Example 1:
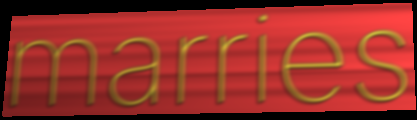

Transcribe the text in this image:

marries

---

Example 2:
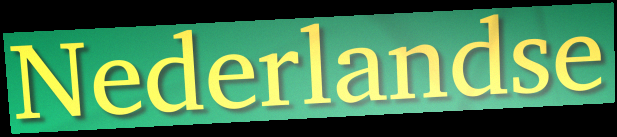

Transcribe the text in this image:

Nederlandse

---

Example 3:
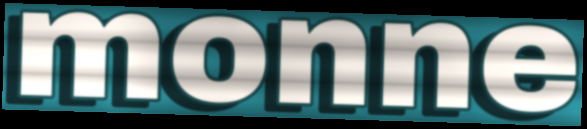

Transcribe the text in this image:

monne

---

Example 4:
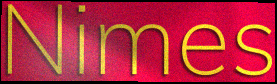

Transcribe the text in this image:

Nimes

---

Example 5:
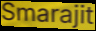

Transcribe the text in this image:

Smarajit